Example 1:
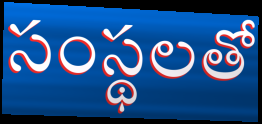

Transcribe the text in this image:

సంస్థలతో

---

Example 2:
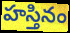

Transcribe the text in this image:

హస్తినం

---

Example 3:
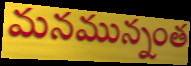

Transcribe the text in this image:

మనమున్నంత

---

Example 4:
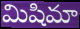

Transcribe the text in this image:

మిషిమా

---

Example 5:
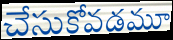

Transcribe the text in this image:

చేసుకోవడమూ